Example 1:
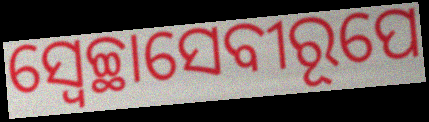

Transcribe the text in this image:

ସ୍ଵେଚ୍ଛାସେବୀରୂପେ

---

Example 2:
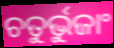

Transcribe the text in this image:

ଚତୁର୍ଭୁଜାଂ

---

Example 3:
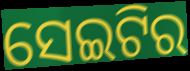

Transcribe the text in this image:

ସେଇଟିର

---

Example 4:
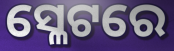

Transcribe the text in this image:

ସ୍ଳେଟରେ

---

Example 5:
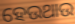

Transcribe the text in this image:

ହେଉଥାଉ